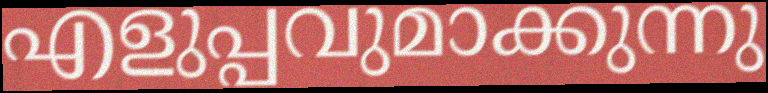
എളുപ്പവുമാക്കുന്നു